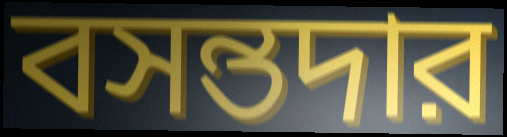
বসন্তদার